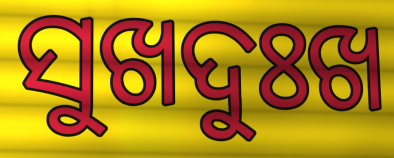
ସୁଖଦୁଃଖ